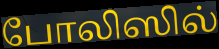
போலிஸில்